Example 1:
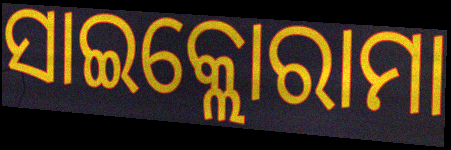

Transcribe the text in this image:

ସାଇକ୍ଲୋରାମା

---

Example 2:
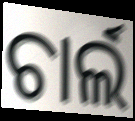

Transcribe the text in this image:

ଚାର୍ଲ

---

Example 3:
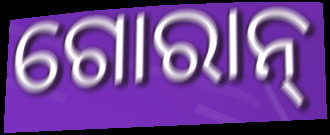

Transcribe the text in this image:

ଗୋରାନ୍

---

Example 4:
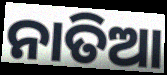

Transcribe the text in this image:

ନାତିଆ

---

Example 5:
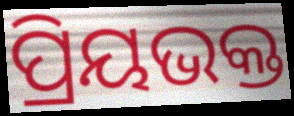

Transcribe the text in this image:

ପ୍ରିୟଭକ୍ତ